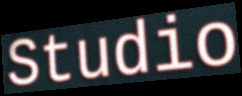
Studio